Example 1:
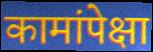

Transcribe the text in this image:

कामांपेक्षा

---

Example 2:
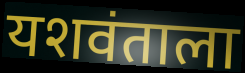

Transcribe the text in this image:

यशवंताला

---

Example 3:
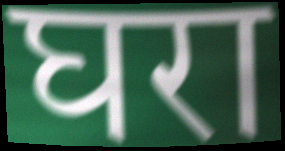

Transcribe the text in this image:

घरा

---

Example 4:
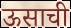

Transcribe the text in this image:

ऊसाची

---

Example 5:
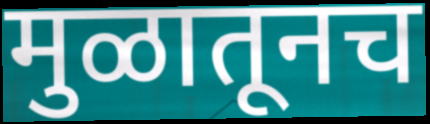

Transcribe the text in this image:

मुळातूनच